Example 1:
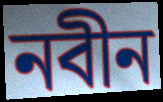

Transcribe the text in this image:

নবীন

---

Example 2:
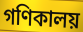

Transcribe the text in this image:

গণিকালয়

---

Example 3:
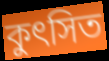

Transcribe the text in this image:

কুৎসিত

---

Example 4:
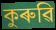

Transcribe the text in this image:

কুৰুৱি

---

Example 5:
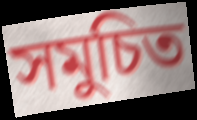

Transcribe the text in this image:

সমুচিত